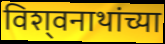
विश्वनाथांच्या